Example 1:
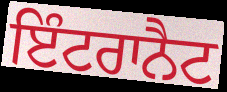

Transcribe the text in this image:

ਇੰਟਰਾਨੈਟ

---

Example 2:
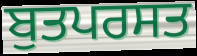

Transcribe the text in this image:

ਬੁਤਪਰਸਤ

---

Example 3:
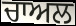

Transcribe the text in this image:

ਚਾਅਲ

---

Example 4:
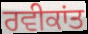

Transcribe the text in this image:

ਰਵੀਕਾਂਤ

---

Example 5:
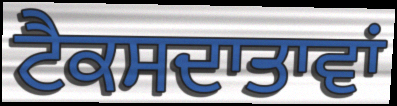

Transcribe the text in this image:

ਟੈਕਸਦਾਤਾਵਾਂ